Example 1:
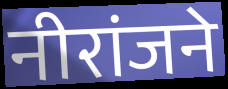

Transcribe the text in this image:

नीरांजने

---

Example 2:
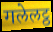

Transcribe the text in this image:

गलेलट्ठ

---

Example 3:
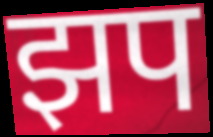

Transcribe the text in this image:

झप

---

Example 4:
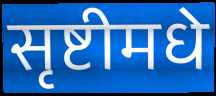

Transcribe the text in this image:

सृष्टीमधे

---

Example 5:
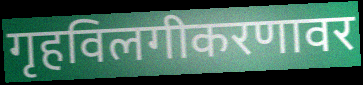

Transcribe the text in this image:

गृहविलगीकरणावर